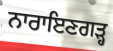
ਨਾਰਾਇਣਗੜ੍ਹ